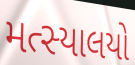
મત્સ્યાલયો